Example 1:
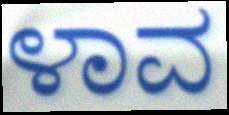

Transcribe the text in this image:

ಳಾವ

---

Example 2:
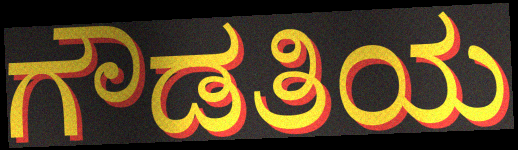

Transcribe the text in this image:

ಗೌಡತಿಯ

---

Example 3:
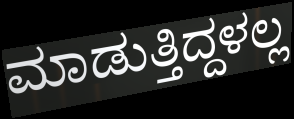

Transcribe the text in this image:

ಮಾಡುತ್ತಿದ್ದಳಲ್ಲ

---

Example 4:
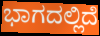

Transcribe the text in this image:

ಭಾಗದಲ್ಲಿದೆ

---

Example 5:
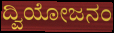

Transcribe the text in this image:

ದ್ವಿಯೋಜನಂ